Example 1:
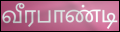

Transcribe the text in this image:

வீரபாண்டி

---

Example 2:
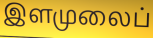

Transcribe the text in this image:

இளமுலைப்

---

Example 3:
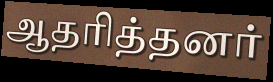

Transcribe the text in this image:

ஆதரித்தனர்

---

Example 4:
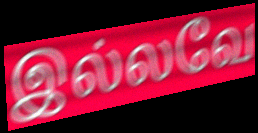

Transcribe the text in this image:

இல்லவே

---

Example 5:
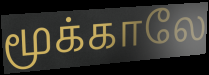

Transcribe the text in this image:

மூக்காலே